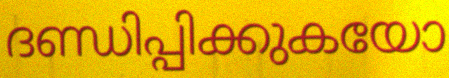
ദണ്ഡിപ്പിക്കുകയോ